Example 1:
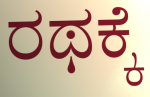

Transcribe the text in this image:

ರಥಕ್ಕೆ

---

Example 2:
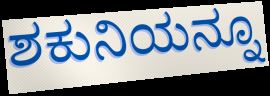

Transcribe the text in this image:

ಶಕುನಿಯನ್ನೂ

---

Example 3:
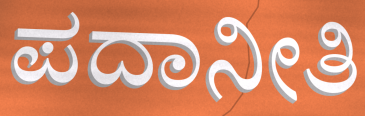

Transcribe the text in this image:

ಪದಾನೀತಿ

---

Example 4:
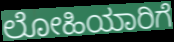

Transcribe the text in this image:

ಲೋಹಿಯಾರಿಗೆ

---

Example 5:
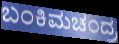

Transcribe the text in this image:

ಬಂಕಿಮಚಂದ್ರ